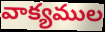
వాక్యముల